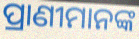
ପ୍ରାଣୀମାନଙ୍କ